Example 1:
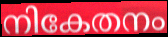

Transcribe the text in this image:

നികേതനം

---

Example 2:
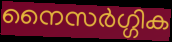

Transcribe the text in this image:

നൈസർഗ്ഗിക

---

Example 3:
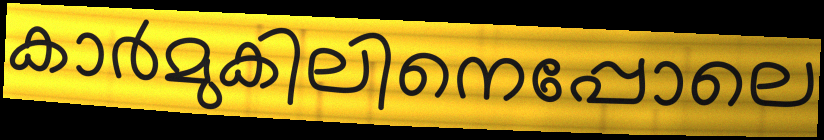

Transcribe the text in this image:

കാർമുകിലിനെപ്പോലെ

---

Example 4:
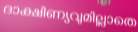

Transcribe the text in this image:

ദാക്ഷിണ്യവുമില്ലാതെ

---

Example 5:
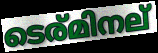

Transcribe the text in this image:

ടെര്മിനല്